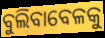
ବୁଲିବାବେଳକୁ